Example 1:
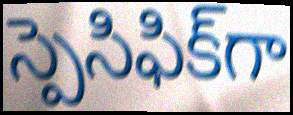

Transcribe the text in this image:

స్పెసిఫిక్‌గా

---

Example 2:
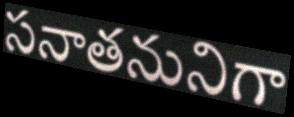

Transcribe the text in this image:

సనాతనునిగా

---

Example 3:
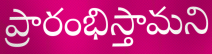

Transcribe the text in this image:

ప్రారంభిస్తామని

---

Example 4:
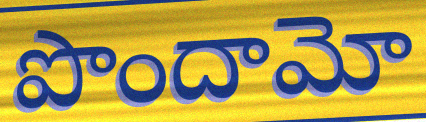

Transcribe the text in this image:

పొందామో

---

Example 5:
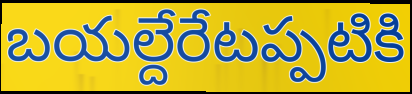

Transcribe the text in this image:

బయల్దేరేటప్పటికి